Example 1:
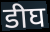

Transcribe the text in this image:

डीघ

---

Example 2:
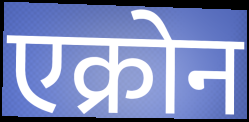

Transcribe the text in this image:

एक्रोन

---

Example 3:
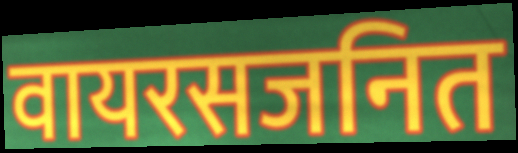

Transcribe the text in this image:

वायरसजनित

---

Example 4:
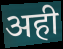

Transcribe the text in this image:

अही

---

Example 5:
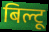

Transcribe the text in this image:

बिल्टू